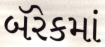
બૅરેકમાં